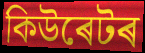
কিউৰেটৰ